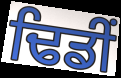
ਢਿਡੀਂ